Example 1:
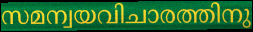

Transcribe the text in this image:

സമന്വയവിചാരത്തിനു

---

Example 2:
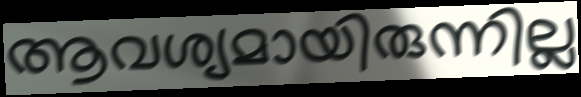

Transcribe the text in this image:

ആവശ്യമായിരുന്നില്ല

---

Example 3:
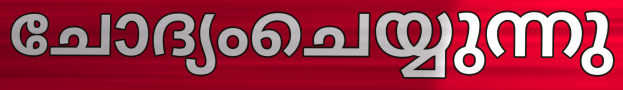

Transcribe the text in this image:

ചോദ്യംചെയ്യുന്നു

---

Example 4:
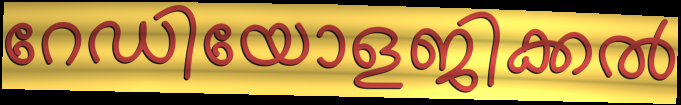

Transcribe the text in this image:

റേഡിയോളജിക്കൽ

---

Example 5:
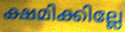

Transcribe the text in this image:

ക്ഷമിക്കില്ലേ